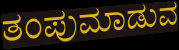
ತಂಪುಮಾಡುವ